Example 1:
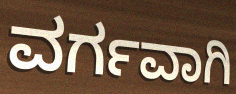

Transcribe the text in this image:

ವರ್ಗವಾಗಿ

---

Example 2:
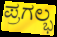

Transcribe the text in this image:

ಪ್ರಗಲ್ಭ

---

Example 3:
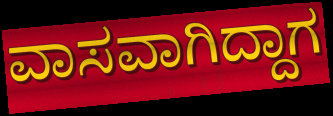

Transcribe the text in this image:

ವಾಸವಾಗಿದ್ದಾಗ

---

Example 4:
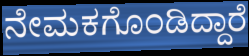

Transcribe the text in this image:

ನೇಮಕಗೊಂಡಿದ್ದಾರೆ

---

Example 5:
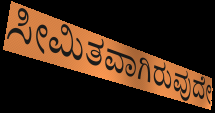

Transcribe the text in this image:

ಸೀಮಿತವಾಗಿರುವುದೇ